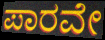
ಪಾರವೇ